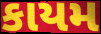
કાયમ